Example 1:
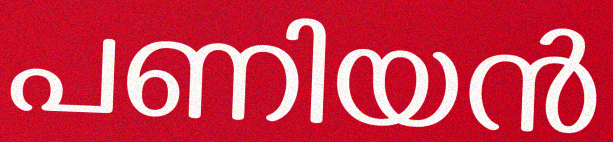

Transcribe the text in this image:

പണിയൻ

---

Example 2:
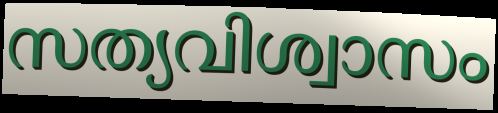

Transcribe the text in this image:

സത്യവിശ്വാസം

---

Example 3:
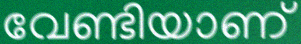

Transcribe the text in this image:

വേണ്ടിയാണ്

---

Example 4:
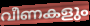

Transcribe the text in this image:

വീണകളും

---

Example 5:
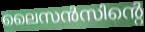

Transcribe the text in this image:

ലൈസൻസിന്റെ